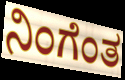
ನಿಂಗೆಂತ